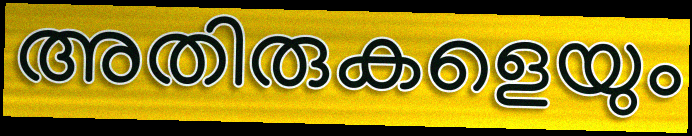
അതിരുകളെയും